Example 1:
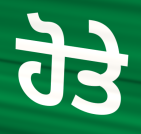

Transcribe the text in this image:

ਹੋਤੇ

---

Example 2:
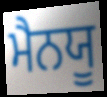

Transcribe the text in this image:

ਮੈਨਯੂ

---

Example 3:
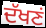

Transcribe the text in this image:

ਦੱਖਣਂ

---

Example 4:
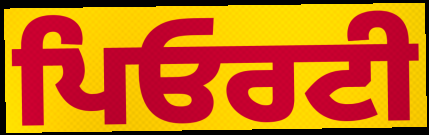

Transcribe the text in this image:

ਪਿਓਰਟੀ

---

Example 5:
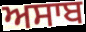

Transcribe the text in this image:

ਅਸਾਬ